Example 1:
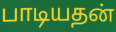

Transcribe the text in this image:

பாடியதன்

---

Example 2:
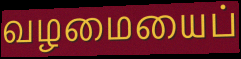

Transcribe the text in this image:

வழமையைப்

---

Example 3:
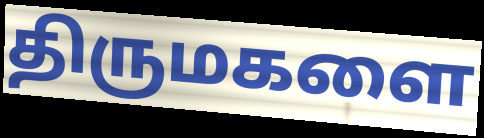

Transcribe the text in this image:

திருமகளை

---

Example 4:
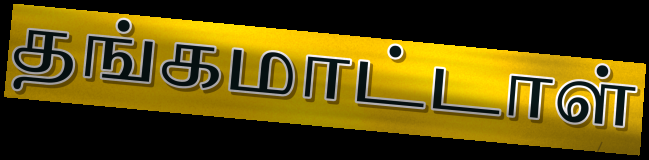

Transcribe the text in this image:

தங்கமாட்டாள்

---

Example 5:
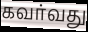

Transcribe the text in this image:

கவர்வது